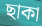
ছাকা